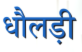
धौलड़ी